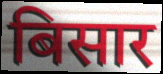
बिसार